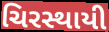
ચિરસ્થાયી